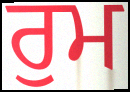
ਰੁਮ